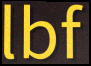
lbf